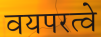
वयपरत्वे